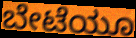
ಬೇಟೆಯೂ